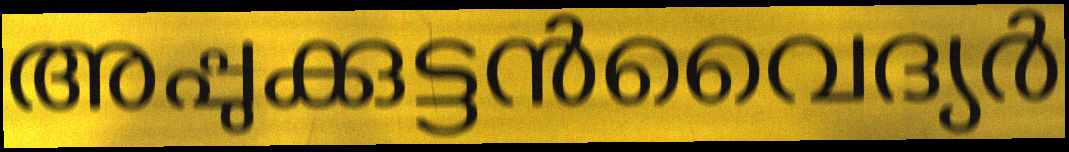
അപ്പുക്കുട്ടൻവൈദ്യർ